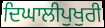
ਦਿਘਾਲੀਪੁਖੁਰੀ